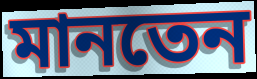
মানতেন